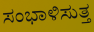
ಸಂಭಾಳಿಸುತ್ತ